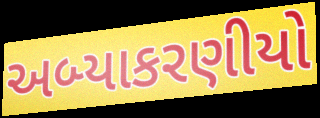
અબ્યાકરણીયો